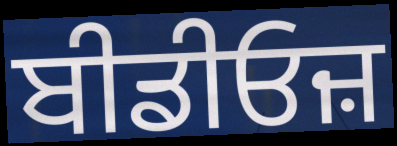
ਬੀਡੀਓਜ਼